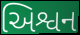
અિશ્વન